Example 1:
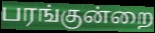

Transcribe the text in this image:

பரங்குன்றை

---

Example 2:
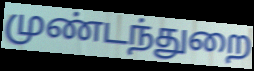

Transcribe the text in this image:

முண்டந்துறை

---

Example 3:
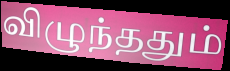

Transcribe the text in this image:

விழுந்ததும்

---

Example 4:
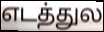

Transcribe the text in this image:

எடத்துல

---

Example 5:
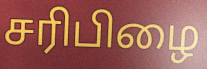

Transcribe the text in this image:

சரிபிழை